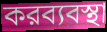
করব্যবস্থা